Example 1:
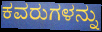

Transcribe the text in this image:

ಕವರುಗಳನ್ನು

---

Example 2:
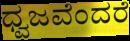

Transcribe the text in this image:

ಧ್ವಜವೆಂದರೆ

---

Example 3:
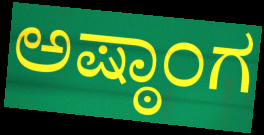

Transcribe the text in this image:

ಅಷ್ಠಾಂಗ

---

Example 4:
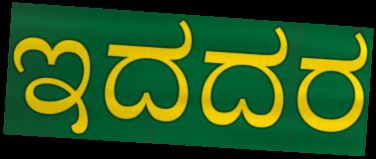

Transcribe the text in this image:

ಇದದರ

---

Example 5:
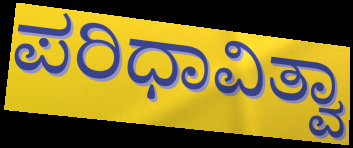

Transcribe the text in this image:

ಪರಿಧಾವಿತ್ವಾ